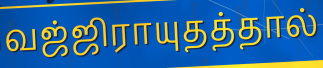
வஜ்ஜிராயுதத்தால்